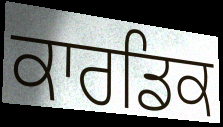
ਕਾਰਡਿਕ